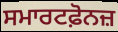
ਸਮਾਰਟਫ਼ੋਨਜ਼